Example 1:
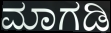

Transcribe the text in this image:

ಮಾಗಡಿ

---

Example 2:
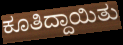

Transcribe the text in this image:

ಕೂತಿದ್ದಾಯಿತು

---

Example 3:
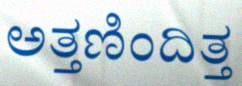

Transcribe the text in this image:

ಅತ್ತಣಿಂದಿತ್ತ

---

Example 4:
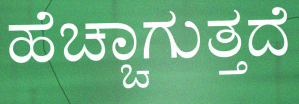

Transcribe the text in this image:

ಹೆಚ್ಚಾಗುತ್ತದೆ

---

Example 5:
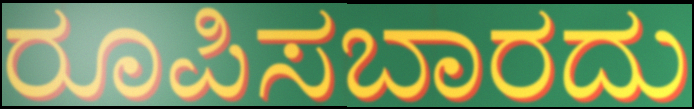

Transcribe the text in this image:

ರೂಪಿಸಬಾರದು